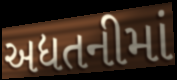
અદ્યતનીમાં